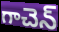
గాచెన్